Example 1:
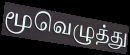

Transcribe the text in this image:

மூவெழுத்து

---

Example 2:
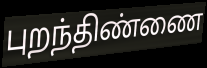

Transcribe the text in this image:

புறந்திண்ணை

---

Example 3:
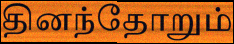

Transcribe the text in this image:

தினந்தோறும்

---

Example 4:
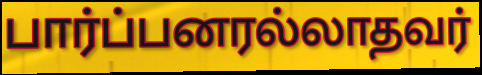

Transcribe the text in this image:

பார்ப்பனரல்லாதவர்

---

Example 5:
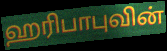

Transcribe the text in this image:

ஹரிபாபுவின்